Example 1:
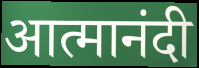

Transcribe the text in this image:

आत्मानंदी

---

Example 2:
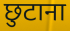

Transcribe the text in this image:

छुटाना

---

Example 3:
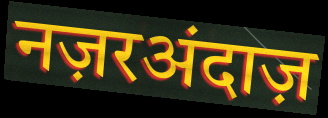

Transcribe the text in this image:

नज़रअंदाज़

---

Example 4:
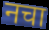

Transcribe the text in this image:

नचा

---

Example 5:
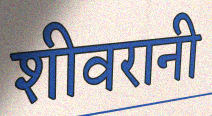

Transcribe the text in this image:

शीवरानी